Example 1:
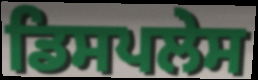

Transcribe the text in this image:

ਡਿਸਪਲੇਸ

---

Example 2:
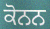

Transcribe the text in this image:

ਕੋਨਨ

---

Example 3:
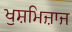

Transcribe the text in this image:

ਖੁਸ਼ਮਿਜ਼ਾਜ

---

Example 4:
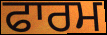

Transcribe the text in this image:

ਫਾਰਮ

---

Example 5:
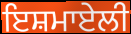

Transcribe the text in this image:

ਇਸ਼ਮਾਏਲੀ